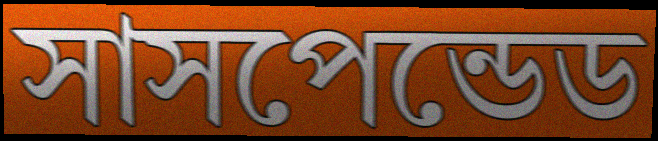
সাসপেন্ডেড